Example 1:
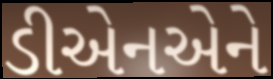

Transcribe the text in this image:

ડીએનએને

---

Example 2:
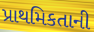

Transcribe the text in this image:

પ્રાથમિકતાની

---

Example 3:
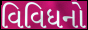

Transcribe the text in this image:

વિવિધનો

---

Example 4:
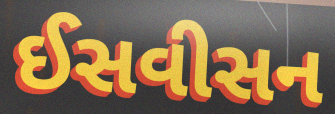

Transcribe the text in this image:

ઈસવીસન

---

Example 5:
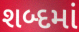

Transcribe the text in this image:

શબ્દમાં